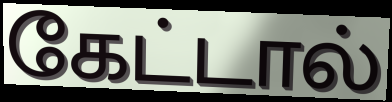
கேட்டால்